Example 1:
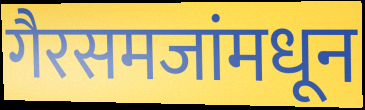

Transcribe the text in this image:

गैरसमजांमधून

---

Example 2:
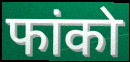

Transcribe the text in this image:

फांको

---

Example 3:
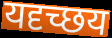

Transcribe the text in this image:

यदृच्छय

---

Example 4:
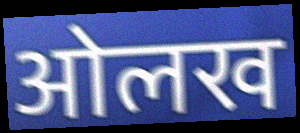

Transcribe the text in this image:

ओलख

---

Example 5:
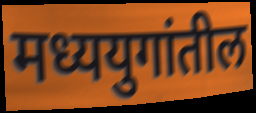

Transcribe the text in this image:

मध्ययुगांतील